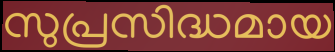
സുപ്രസിദ്ധമായ